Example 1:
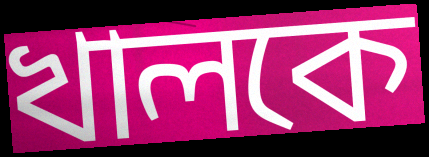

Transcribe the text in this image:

খালকে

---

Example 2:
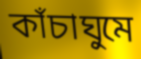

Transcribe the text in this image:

কাঁচাঘুমে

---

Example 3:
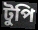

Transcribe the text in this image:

টুপি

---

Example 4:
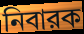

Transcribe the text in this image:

নিবারক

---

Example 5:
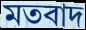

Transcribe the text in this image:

মতবাদ